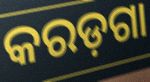
କରଡ଼ଗା